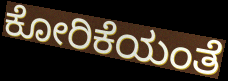
ಕೋರಿಕೆಯಂತೆ